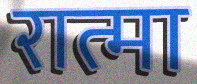
रात्मा